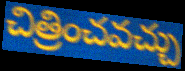
చిత్రించవచ్చు